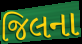
જિલના